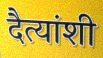
दैत्यांशी